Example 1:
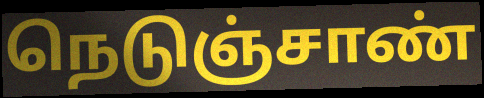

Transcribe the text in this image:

நெடுஞ்சாண்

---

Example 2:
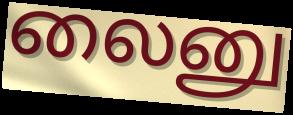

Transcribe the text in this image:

லைனு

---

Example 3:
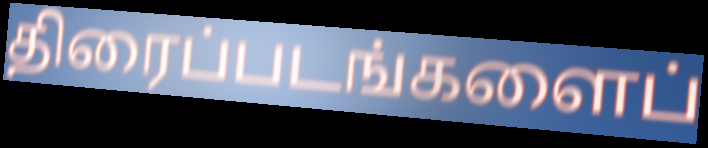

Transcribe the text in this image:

திரைப்படங்களைப்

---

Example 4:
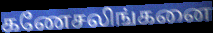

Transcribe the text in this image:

கணேசலிங்கனை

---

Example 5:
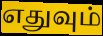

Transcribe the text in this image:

எதுவும்